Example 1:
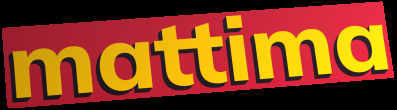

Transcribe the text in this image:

mattima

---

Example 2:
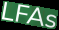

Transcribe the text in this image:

LFAs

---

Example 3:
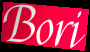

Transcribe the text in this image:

Bori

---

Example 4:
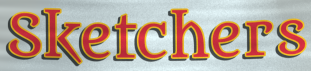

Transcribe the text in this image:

Sketchers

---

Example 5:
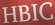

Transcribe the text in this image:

HBIC